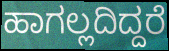
ಹಾಗಲ್ಲದಿದ್ದರೆ